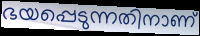
ഭയപ്പെടുന്നതിനാണ്